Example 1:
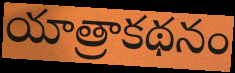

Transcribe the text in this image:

యాత్రాకథనం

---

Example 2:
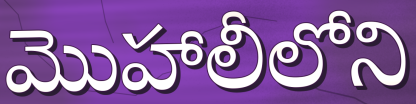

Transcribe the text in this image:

మొహాలీలోని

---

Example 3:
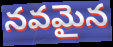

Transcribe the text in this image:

నవమైన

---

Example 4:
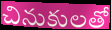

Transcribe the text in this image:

చినుకులతో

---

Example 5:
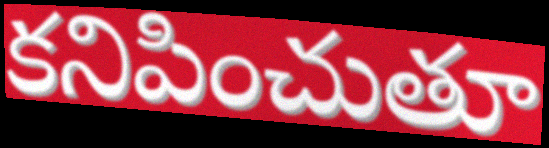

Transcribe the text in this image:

కనిపించుతూ